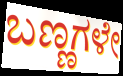
ಬಣ್ಣಗಳೇ